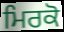
ਮਿਰਕੋ